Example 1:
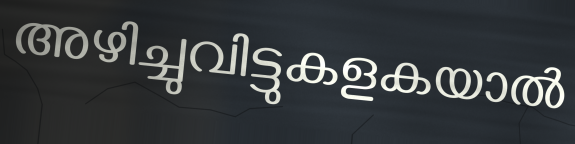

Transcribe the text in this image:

അഴിച്ചുവിട്ടുകളകയാൽ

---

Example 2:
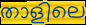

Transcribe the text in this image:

താളിലെ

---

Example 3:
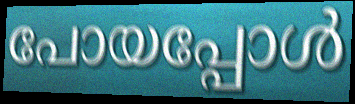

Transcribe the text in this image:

പോയപ്പോൾ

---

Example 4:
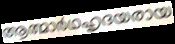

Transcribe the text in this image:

ആത്മാർഥഹൃദയരായ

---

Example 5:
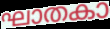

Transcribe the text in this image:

ഘാതകാ